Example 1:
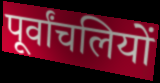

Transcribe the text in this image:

पूर्वांचलियों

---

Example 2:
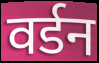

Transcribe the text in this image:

वर्डन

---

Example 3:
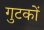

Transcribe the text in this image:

गुटकों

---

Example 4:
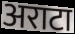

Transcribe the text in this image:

अराटा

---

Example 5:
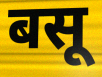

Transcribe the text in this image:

बसू